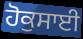
ਹੋਕੁਸਾਈ